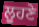
ਲੂਹਣੇ